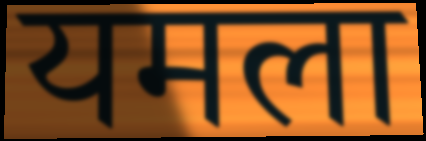
यमला